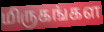
மிருகங்கள